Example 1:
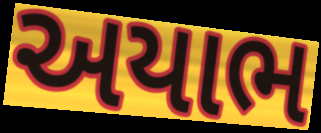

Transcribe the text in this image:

અયાભ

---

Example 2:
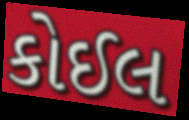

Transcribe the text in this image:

કોઈલ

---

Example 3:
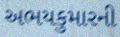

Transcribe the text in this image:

અભયકુમારની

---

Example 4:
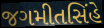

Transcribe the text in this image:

જગમીતસિંહે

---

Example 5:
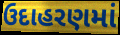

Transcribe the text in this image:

ઉદાહરણમાં